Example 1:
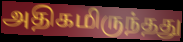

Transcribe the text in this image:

அதிகமிருந்தது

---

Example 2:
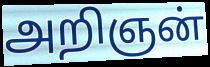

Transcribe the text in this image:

அறிஞன்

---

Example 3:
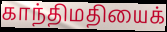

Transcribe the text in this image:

காந்திமதியைக்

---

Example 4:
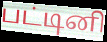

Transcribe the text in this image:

பட்டினி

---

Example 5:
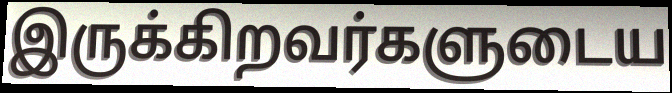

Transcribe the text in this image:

இருக்கிறவர்களுடைய